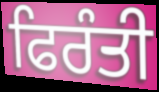
ਫਿਰੰਤੀ